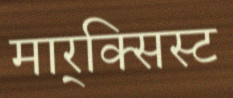
मार्क्सिस्ट